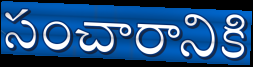
సంచారానికి